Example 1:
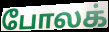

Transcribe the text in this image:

போலக்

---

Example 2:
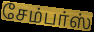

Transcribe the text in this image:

சேம்பர்ஸ்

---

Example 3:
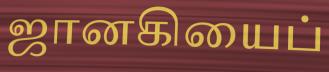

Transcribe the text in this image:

ஜானகியைப்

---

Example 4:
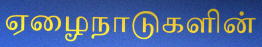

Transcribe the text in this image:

ஏழைநாடுகளின்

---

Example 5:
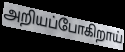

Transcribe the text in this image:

அறியப்போகிறாய்